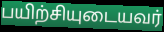
பயிற்சியுடையவர்